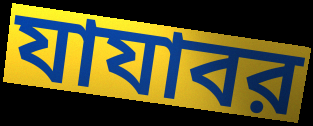
যাযাবর